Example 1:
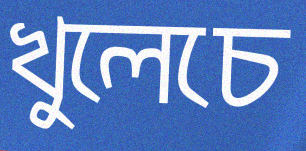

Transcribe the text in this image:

খুলেচে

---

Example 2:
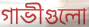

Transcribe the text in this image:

গাভীগুলো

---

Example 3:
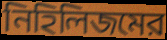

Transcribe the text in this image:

নিহিলিজমের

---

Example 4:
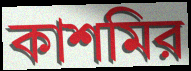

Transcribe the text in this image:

কাশমির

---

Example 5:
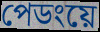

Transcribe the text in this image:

পেডংয়ে